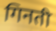
गिनती